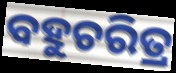
ବହୁଚରିତ୍ର